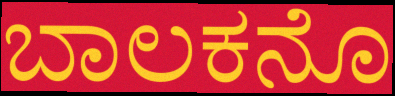
ಬಾಲಕನೊ